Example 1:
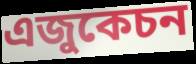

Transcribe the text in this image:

এজুকেচন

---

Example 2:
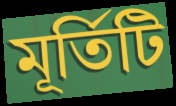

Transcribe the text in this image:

মূৰ্তিটি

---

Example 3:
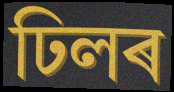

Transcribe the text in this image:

ঢিলৰ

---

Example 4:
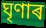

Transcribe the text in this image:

ঘৃণাৰ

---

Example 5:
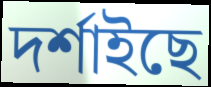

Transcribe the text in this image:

দৰ্শাইছে